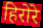
हिरोरे